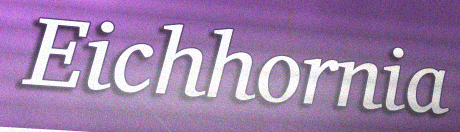
Eichhornia